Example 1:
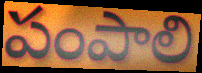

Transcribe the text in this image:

పంపాలి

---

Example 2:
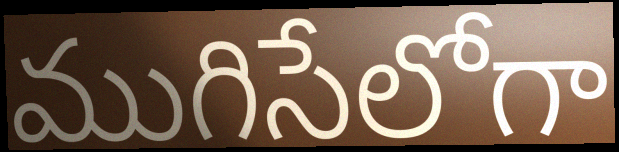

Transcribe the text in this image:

ముగిసేలోగా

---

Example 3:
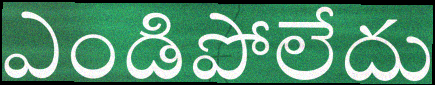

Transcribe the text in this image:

ఎండిపోలేదు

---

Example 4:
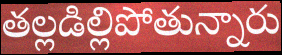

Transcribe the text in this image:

తల్లడిల్లిపోతున్నారు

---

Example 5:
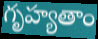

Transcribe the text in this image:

గృహ్యతాం